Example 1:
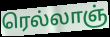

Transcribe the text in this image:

ரெல்லாஞ்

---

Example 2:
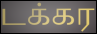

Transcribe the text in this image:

டக்கர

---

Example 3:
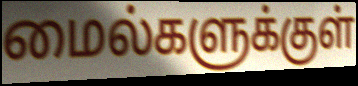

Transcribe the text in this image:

மைல்களுக்குள்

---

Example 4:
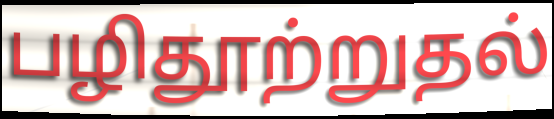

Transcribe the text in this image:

பழிதூற்றுதல்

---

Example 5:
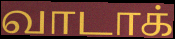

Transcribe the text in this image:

வாடாக்